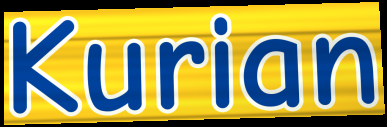
Kurian